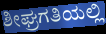
ಶೀಘ್ರಗತಿಯಲ್ಲಿ